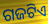
ଗଜଟିଏ